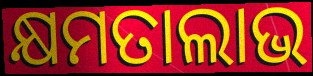
କ୍ଷମତାଲାଭ